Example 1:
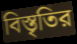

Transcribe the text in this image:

বিস্তৃতির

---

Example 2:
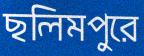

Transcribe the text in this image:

ছলিমপুরে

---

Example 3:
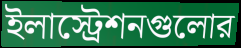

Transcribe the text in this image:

ইলাস্ট্রেশনগুলোর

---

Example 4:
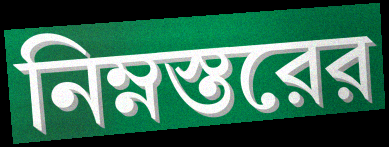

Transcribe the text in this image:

নিম্নস্তরের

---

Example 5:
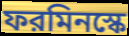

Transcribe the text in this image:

ফরমিনস্কে